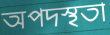
অপদস্থতা